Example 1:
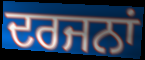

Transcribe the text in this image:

ਦਰਜਨਾਂ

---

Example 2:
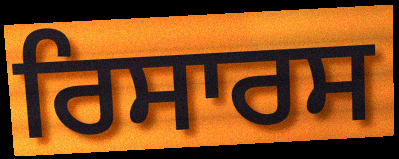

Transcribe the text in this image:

ਰਿਸਾਰਸ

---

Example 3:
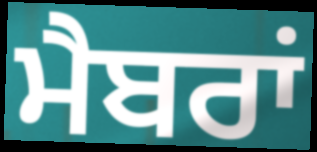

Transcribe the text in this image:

ਮੈਬਰਾਂ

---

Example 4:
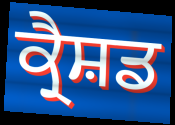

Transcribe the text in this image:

ਕ੍ਰੈਸ਼ਡ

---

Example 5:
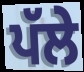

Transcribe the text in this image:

ਪੱਲੇ